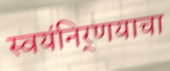
स्वयंनिर्णयाचा